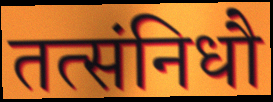
तत्संनिधौ